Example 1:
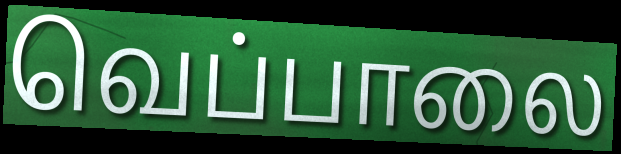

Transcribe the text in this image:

வெப்பாலை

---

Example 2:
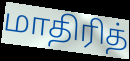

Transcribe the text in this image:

மாதிரித்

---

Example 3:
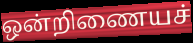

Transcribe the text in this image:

ஒன்றிணையச்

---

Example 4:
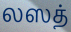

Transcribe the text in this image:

லஸத்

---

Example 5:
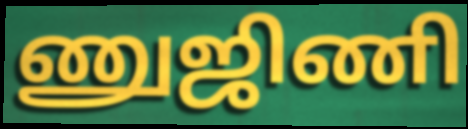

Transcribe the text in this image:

ணுஜிணி